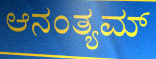
ಆನಂತ್ಯಮ್